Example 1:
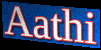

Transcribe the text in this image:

Aathi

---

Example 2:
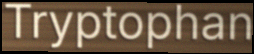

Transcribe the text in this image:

Tryptophan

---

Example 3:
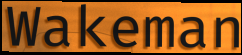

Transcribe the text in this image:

Wakeman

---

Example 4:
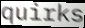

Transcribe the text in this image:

quirks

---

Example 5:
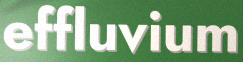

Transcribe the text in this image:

effluvium